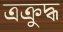
ত্রক্রুদ্ধ